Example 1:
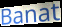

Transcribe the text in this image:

Banat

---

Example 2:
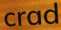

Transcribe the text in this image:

crad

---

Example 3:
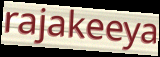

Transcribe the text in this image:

rajakeeya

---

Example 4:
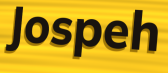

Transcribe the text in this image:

Jospeh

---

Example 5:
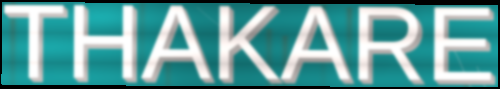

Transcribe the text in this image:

THAKARE